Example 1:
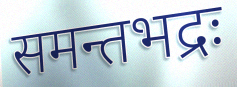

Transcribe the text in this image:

समन्तभद्रः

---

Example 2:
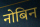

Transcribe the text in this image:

नोबिन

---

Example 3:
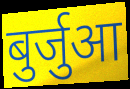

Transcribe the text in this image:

बुर्जुआ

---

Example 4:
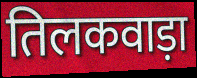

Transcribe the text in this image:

तिलकवाड़ा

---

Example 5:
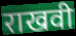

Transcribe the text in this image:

राखवी